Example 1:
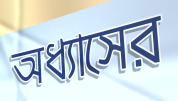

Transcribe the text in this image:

অধ্যাসের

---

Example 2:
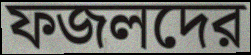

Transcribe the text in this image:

ফজলদের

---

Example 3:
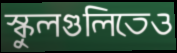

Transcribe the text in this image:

স্কুলগুলিতেও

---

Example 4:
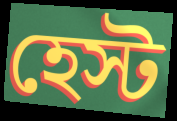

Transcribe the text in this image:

হেস্ট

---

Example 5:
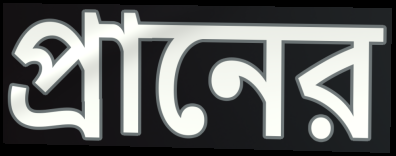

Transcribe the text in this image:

প্রানের